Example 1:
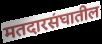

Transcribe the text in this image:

मतदारसंघातील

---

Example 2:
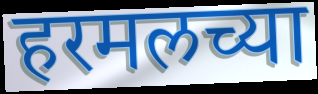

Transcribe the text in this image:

हरमलच्या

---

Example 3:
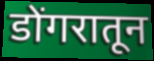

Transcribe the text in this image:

डोंगरातून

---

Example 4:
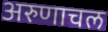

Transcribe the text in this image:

अरुणाचल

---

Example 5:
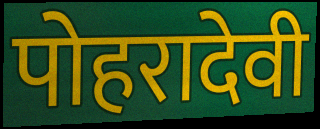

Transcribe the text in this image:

पोहरादेवी